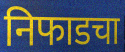
निफाडचा